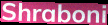
Shraboni